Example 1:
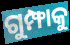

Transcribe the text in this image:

ଗୁମ୍ଫାକୁ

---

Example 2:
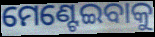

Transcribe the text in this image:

ମେଣ୍ଟେଇବାକୁ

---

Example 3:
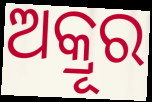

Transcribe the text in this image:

ଅକ୍ରୂର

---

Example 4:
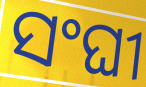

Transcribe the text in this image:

ସଂଘୀ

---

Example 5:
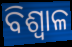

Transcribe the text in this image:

ବିଶ୍ୱାଳ